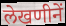
लेखणीनें